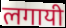
लगायी